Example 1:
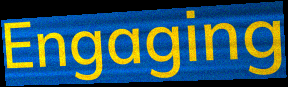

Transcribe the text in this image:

Engaging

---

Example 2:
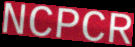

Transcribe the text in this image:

NCPCR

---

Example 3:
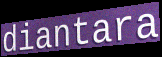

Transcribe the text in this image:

diantara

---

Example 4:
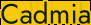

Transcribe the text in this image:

Cadmia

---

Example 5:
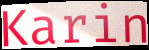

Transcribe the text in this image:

Karin